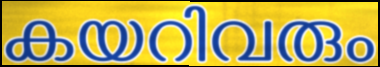
കയറിവരും